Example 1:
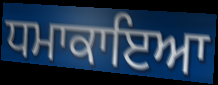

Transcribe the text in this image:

ਧਮਾਕਾਇਆ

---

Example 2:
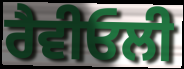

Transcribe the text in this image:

ਰੈਵੀਓਲੀ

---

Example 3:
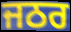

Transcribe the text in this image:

ਜਠਰ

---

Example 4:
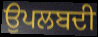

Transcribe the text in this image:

ਉਪਲਬਦੀ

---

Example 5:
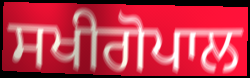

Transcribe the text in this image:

ਸਖੀਗੋਪਾਲ